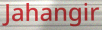
Jahangir